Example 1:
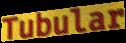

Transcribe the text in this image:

Tubular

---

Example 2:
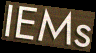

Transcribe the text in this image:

IEMs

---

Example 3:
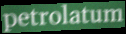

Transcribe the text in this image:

petrolatum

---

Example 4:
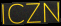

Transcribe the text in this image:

ICZN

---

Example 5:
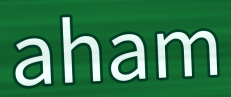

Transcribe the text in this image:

aham